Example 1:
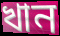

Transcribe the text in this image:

খান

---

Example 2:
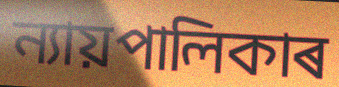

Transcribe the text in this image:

ন্যায়পালিকাৰ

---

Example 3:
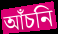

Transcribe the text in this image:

আঁচনি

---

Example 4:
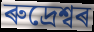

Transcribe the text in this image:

ৰুদ্ৰেশ্বৰ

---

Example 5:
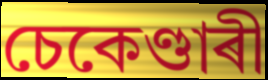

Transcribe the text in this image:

চেকেণ্ডাৰী